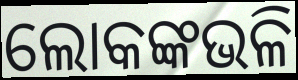
ଲୋକଙ୍କଭଳି